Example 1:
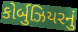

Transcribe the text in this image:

કોર્બુઝિયરનું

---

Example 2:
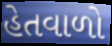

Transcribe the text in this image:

હેતવાળો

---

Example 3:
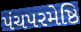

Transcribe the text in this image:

પંચપરમેષ્ઠિ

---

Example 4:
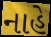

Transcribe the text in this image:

નાહે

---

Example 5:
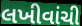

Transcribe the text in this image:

લખીવાંચી